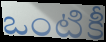
ఒంటికీ